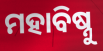
ମହାବିଷ୍ନୁ